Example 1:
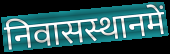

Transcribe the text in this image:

निवासस्थानमें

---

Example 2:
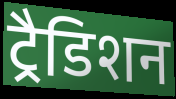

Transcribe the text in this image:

ट्रैडिशन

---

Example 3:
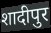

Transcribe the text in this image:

शादीपुर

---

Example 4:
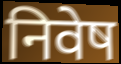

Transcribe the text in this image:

निवेष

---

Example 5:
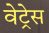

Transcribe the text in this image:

वेट्रेस